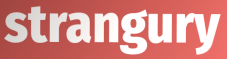
strangury